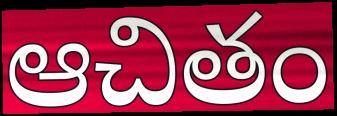
ఆచితం